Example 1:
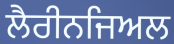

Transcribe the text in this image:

ਲੈਰੀਨਜਿਅਲ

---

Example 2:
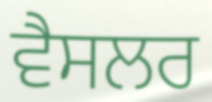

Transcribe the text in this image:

ਵੈਸਲਰ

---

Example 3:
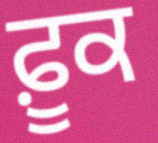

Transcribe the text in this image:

ਫ਼ੂਕ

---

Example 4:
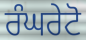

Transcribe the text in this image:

ਰੰਘਰੇਟੋ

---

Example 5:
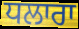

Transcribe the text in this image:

ਧਲਾਰਾ